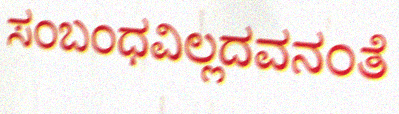
ಸಂಬಂಧವಿಲ್ಲದವನಂತೆ